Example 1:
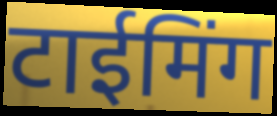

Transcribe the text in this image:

टाईमिंग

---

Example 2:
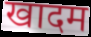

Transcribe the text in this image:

खादम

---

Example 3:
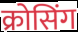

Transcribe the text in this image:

क्रोसिंग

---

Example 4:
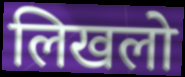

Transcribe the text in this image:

लिखलो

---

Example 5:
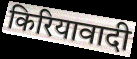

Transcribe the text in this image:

किरियावादी